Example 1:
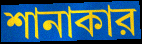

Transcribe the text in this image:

শানাকার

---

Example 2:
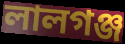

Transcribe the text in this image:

লালগঞ্জ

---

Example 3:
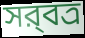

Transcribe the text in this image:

সর্‍বত্র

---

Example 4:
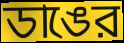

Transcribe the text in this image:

ডাঙের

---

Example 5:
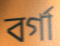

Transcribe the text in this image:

বর্গা